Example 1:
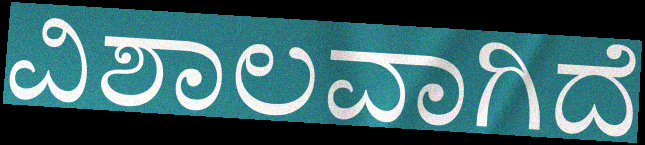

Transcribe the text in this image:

ವಿಶಾಲವಾಗಿದೆ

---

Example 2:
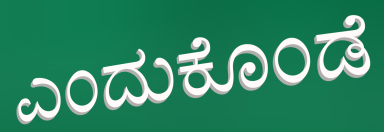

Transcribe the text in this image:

ಎಂದುಕೊಂಡೆ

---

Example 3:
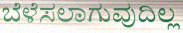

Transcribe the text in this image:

ಬೆಳೆಸಲಾಗುವುದಿಲ್ಲ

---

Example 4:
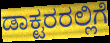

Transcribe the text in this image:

ಡಾಕ್ಟರರಲ್ಲಿಗೆ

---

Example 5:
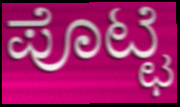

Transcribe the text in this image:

ಪೊಟ್ಟೆ